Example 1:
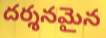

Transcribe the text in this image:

దర్శనమైన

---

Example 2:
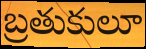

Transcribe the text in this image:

బ్రతుకులూ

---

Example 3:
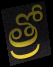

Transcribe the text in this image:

త్రో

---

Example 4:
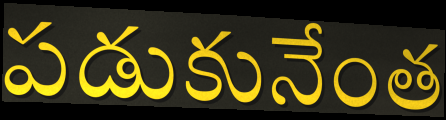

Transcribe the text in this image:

పడుకునేంత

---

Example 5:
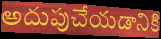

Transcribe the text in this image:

అదుపుచేయడానికి